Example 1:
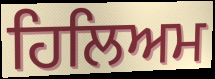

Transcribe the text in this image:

ਹਿਲਿਅਮ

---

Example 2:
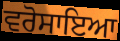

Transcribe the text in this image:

ਵਰੋਸਾਇਆ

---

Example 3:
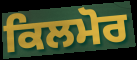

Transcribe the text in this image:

ਕਿਲਮੋਰ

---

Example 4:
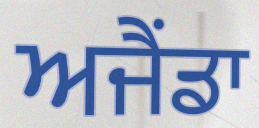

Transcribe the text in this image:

ਅਜੈਂਡਾ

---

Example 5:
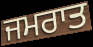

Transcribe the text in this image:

ਜਮਰਾਤ